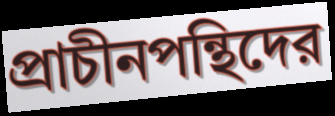
প্রাচীনপন্থিদের